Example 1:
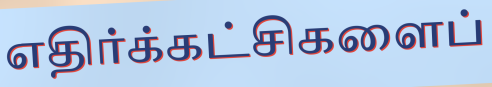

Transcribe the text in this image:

எதிர்க்கட்சிகளைப்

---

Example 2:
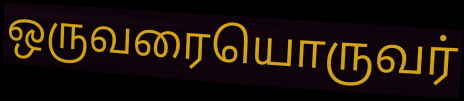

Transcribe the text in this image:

ஒருவரையொருவர்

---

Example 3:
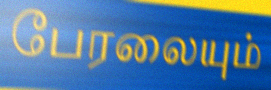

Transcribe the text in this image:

பேரலையும்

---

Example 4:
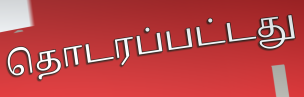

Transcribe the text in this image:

தொடரப்பட்டது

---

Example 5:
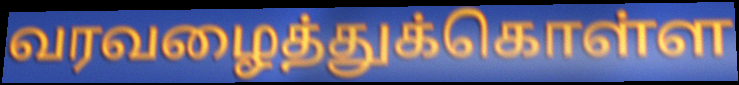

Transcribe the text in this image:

வரவழைத்துக்கொள்ள